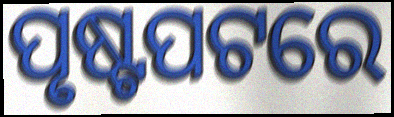
ପୃଷ୍ଟପଟରେ